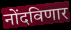
नोंदविणार